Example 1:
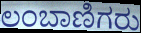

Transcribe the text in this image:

ಲಂಬಾಣಿಗರು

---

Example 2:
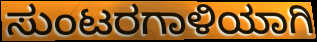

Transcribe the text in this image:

ಸುಂಟರಗಾಳಿಯಾಗಿ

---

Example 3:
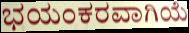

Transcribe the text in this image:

ಭಯಂಕರವಾಗಿಯೆ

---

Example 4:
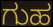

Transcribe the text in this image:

ಗುಹ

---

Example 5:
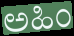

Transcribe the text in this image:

ಅಹಿಂ